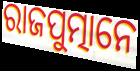
ରାଜପୁତ୍ମାନେ